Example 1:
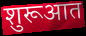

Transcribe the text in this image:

शुरूआत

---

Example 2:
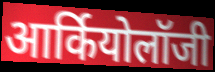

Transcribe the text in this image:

आर्कियोलॉजी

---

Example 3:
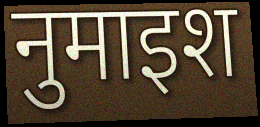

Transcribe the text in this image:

नुमाइश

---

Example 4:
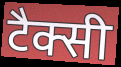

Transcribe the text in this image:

टैक्सी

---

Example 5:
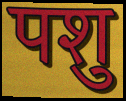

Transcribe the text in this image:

पशु